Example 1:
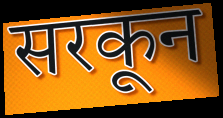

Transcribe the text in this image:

सरकून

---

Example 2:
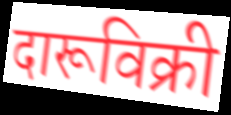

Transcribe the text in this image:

दारूविक्री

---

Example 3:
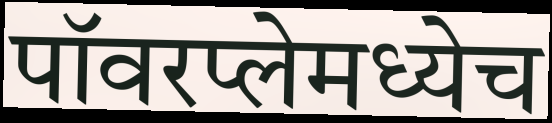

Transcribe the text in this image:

पॉवरप्लेमध्येच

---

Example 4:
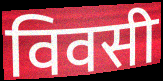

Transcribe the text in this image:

विवसी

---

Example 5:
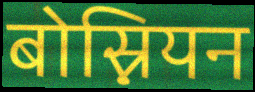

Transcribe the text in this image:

बोस्नियन